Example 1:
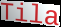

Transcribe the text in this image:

Tila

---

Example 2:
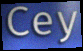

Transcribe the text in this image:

Cey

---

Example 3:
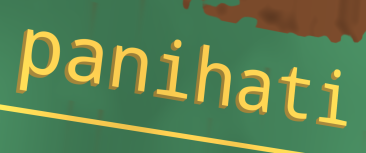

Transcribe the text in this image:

panihati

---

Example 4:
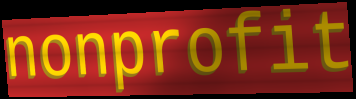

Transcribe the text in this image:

nonprofit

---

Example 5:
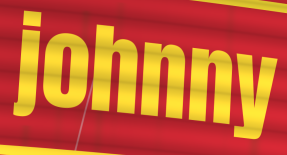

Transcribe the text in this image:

johnny